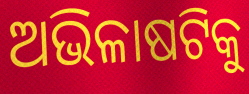
ଅଭିଳାଷଟିକୁ